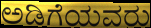
ಅಡಿಗೆಯವರು